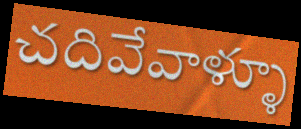
చదివేవాళ్ళూ